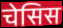
चेसिस